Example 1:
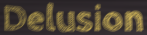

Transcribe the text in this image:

Delusion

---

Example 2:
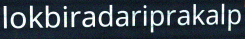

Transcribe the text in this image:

lokbiradariprakalp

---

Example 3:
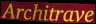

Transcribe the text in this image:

Architrave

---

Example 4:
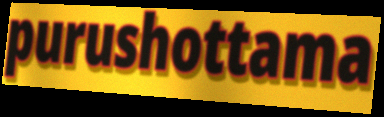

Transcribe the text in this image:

purushottama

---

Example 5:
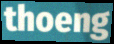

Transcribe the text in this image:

thoeng